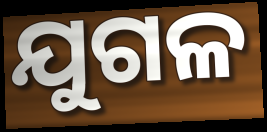
ଯୁଗଳ